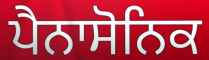
ਪੈਨਾਸੋਨਿਕ